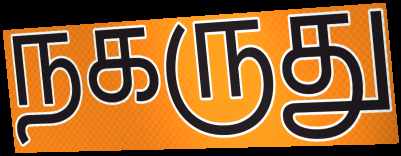
நகருது